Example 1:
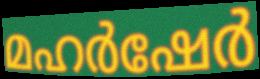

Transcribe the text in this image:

മഹർഷേർ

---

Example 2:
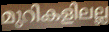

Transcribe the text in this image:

മുറികളിലല്ല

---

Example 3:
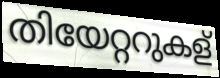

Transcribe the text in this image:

തിയേറ്ററുകള്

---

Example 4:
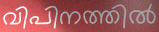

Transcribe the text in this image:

വിപിനത്തിൽ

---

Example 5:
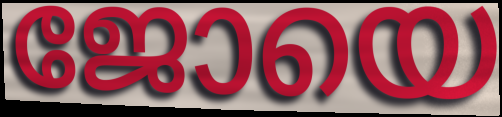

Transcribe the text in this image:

ജോയെ